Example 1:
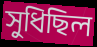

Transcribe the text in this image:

সুধিছিল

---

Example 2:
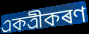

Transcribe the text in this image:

একত্ৰীকৰণ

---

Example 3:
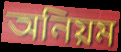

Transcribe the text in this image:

অনিয়ম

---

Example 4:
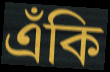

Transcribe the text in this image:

এঁকি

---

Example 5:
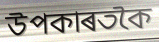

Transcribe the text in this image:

উপকাৰতকৈ